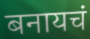
बनायचं